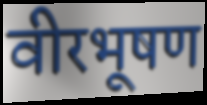
वीरभूषण